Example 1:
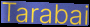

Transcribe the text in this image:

Tarabai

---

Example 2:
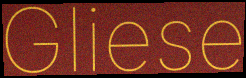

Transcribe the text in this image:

Gliese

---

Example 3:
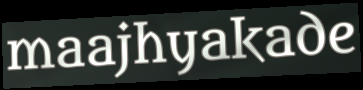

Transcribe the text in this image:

maajhyakade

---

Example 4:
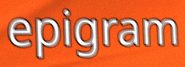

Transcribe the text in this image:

epigram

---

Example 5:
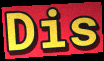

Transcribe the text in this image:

Dis